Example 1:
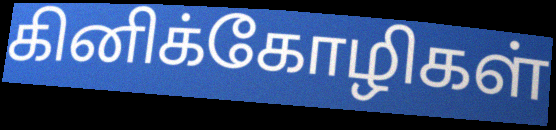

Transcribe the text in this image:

கினிக்கோழிகள்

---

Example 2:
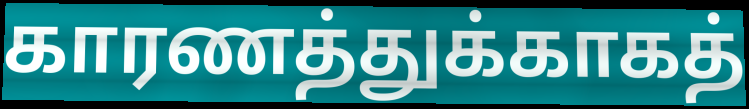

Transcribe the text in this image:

காரணத்துக்காகத்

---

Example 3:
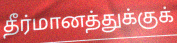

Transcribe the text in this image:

தீர்மானத்துக்குக்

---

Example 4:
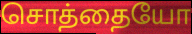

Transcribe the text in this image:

சொத்தையோ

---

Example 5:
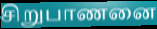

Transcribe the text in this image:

சிறுபாணனை